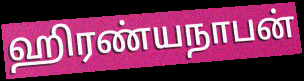
ஹிரண்யநாபன்